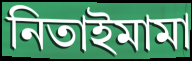
নিতাইমামা